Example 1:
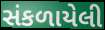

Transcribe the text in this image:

સંકળાયેલી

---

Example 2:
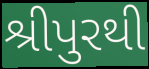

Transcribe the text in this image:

શ્રીપુરથી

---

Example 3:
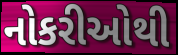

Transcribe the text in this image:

નોકરીઓથી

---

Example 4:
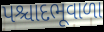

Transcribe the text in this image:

પશ્ચાદભૂવાળા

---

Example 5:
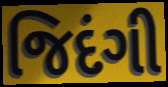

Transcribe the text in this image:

જિદંગી